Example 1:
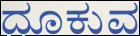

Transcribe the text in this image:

ದೂಕುವ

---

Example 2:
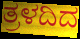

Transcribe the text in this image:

ತ್ರಳದಿದ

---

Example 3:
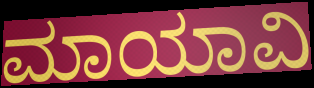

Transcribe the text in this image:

ಮಾಯಾವಿ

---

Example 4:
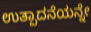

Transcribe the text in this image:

ಉತ್ಪಾದನೆಯನ್ನೇ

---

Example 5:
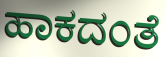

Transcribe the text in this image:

ಹಾಕದಂತೆ